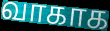
வாகாக